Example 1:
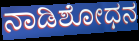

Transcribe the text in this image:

ನಾಡಿಶೋಧನ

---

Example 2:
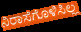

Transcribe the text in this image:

ನಿರಾಸೆಗೊಳಿಸಿಲ್ಲ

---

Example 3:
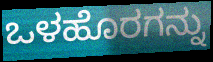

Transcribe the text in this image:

ಒಳಹೊರಗನ್ನು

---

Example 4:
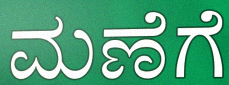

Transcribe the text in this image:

ಮಣೆಗೆ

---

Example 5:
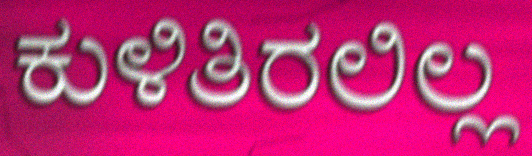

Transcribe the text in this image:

ಕುಳಿತಿರಲಿಲ್ಲ